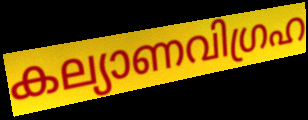
കല്യാണവിഗ്രഹ